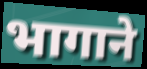
भागाने